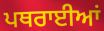
ਪਥਰਾਈਆਂ